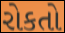
રોકતો